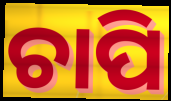
ଚାପି